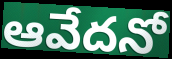
ఆవేదనో